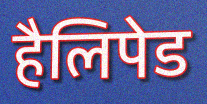
हैलिपेड